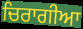
ਚਿਰਾਗੀਆ